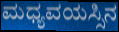
ಮಧ್ಯವಯಸ್ಸಿನ